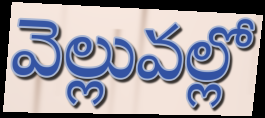
వెల్లువల్లో